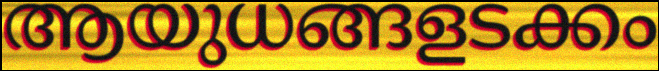
ആയുധങ്ങളടക്കം